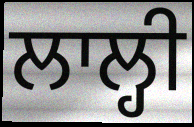
ਲਾਲ੍ਹੀ